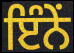
ਇੰਨੇਂ